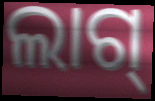
ଲାଗ୍